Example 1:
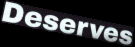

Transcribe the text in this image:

Deserves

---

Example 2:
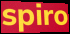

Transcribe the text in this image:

spiro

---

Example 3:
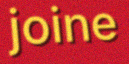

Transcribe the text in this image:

joine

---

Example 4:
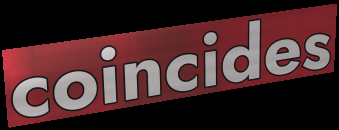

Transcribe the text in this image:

coincides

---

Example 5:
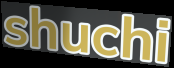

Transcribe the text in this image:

shuchi